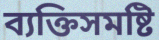
ব্যক্তিসমষ্টি